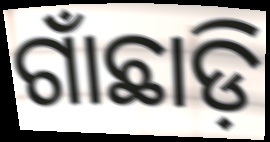
ଗାଁଛାଡ଼ି